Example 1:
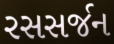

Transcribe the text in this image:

રસસર્જન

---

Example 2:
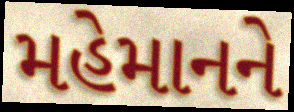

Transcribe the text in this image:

મહેમાનને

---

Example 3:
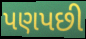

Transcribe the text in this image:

પણપછી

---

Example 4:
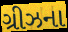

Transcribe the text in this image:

ગ્રીઝના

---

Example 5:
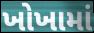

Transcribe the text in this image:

ખોખામાં